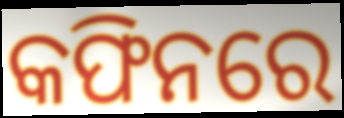
କଫିନରେ